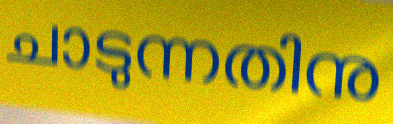
ചാടുന്നതിനു